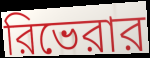
রিভেরার